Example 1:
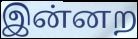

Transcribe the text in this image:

இன்னற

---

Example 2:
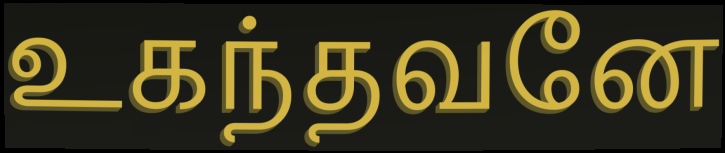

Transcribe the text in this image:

உகந்தவனே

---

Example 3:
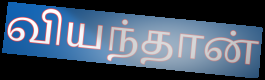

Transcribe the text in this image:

வியந்தான்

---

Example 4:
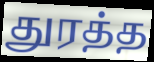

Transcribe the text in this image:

துரத்த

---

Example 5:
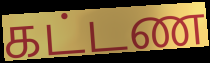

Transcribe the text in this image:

கட்டண